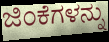
ಜಿಂಕೆಗಳನ್ನು